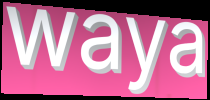
waya